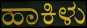
ಹಾಕಿಳು